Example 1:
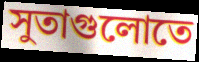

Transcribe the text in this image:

সুতাগুলোতে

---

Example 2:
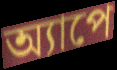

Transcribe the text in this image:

অ্যাপে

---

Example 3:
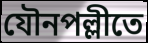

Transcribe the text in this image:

যৌনপল্লীতে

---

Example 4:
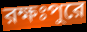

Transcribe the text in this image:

রক্ষঃপুরে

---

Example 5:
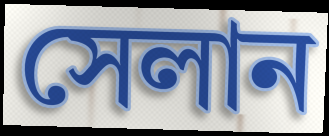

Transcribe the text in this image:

সেলান